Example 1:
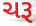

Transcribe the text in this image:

ચરૂ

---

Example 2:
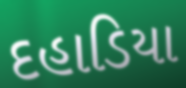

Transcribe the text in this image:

દહાડિયા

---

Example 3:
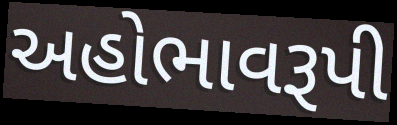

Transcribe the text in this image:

અહોભાવરૂપી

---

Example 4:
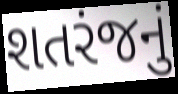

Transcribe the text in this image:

શતરંજનું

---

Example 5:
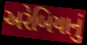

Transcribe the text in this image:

અરેબિયાનું